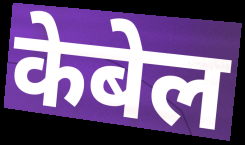
केबेल